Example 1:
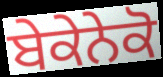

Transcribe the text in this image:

ਬੇਕੇਨੇਕੋ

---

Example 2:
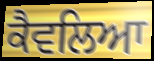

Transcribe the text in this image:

ਕੈਵਲਿਆ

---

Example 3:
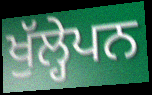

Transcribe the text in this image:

ਖੁੱਲ੍ਹੇਪਨ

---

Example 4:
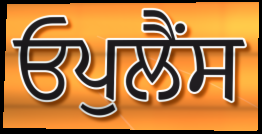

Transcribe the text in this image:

ਓਪੁਲੈਂਸ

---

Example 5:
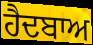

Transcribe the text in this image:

ਹੈਦਬਾਅ